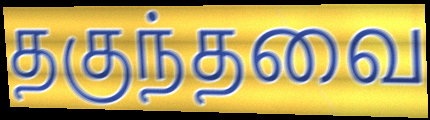
தகுந்தவை